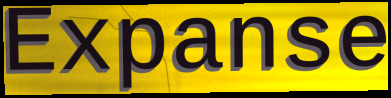
Expanse